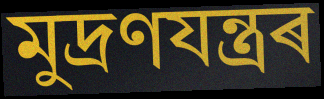
মুদ্ৰণযন্ত্ৰৰ